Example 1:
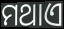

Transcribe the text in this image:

ମଥାଏ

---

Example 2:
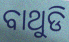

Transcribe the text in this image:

ବାଥୁଡି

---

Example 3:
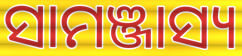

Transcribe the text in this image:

ସାମଞ୍ଜାସ୍ୟ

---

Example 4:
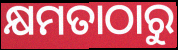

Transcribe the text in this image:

କ୍ଷମତାଠାରୁ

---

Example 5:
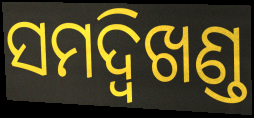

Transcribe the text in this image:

ସମଦ୍ବିଖଣ୍ଡ